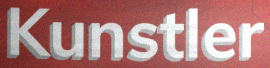
Kunstler